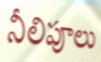
నీలిపూలు